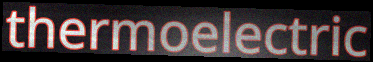
thermoelectric